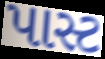
પાસ્ટ